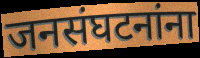
जनसंघटनांना